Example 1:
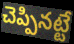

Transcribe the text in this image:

చెప్పినట్టే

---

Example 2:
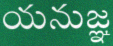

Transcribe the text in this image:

యనుజ్ఞ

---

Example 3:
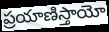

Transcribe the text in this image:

ప్రయాణిస్తాయో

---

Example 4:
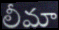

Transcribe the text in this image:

లీమా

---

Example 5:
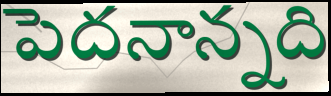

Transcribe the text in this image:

పెదనాన్నది